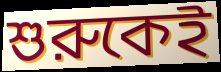
শুরুকেই